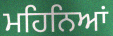
ਮਹਿਨਿਆਂ